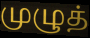
முழுத்